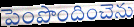
పెంపొందించెను